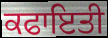
ਕਫਾਇਤੀ